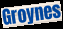
Groynes